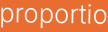
proportio